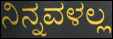
ನಿನ್ನವಳಲ್ಲ